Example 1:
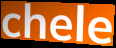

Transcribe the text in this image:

chele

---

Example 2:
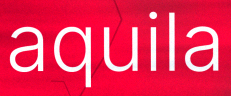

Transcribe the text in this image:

aquila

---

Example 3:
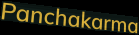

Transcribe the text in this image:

Panchakarma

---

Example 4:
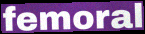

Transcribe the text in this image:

femoral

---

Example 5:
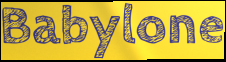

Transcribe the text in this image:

Babylone